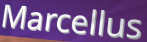
Marcellus